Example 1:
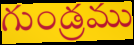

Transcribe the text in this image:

గుండ్రము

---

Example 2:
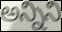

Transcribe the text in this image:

అన్నిని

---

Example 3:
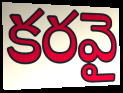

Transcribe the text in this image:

కరవై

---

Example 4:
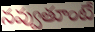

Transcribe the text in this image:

నవ్వుతూంటే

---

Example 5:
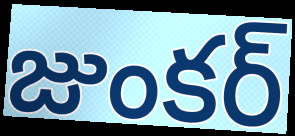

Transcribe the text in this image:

జుంకర్